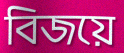
বিজয়ে